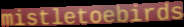
mistletoebirds